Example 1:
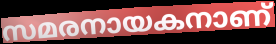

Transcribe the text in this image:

സമരനായകനാണ്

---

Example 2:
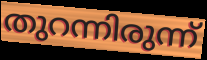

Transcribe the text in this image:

തുറന്നിരുന്ന്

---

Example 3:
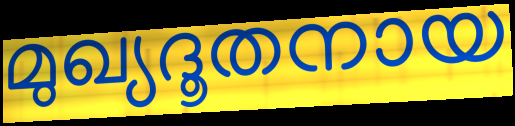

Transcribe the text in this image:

മുഖ്യദൂതനായ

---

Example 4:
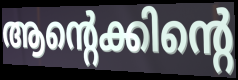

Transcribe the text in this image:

ആന്റെക്കിന്റെ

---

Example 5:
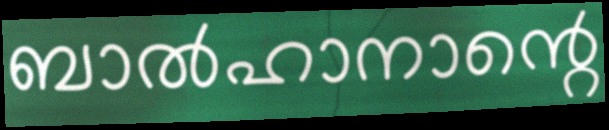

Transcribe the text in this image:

ബാൽഹാനാന്റെ